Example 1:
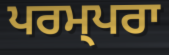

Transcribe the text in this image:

ਪਰਮ੍ਪਰਾ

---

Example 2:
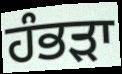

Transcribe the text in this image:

ਹੰਭੜਾ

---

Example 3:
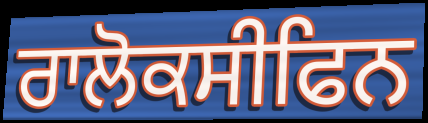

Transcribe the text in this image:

ਰਾਲੋਕਸੀਫਿਨ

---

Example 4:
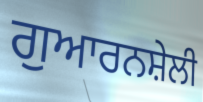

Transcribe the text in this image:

ਗੁਆਰਨਸ਼ੇਲੀ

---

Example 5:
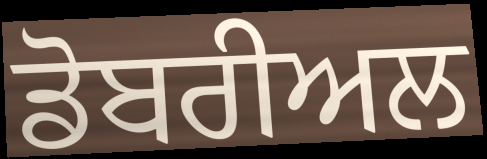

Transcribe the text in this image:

ਡੋਬਰੀਅਲ